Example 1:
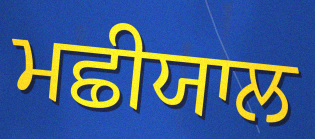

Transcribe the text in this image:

ਮਛੀਯਾਲ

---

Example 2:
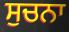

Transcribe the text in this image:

ਸੁਚਨਾ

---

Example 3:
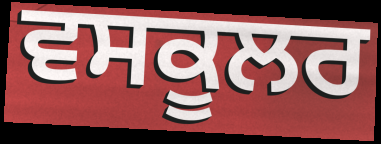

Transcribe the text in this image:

ਵਸਕੂਲਰ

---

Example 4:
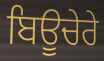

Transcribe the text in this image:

ਬਿਊਚੇਰੇ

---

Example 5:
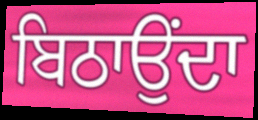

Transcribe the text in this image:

ਬਿਠਾਉਂਦਾ